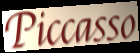
Piccasso